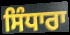
ਸਿੰਧਾਰਾ